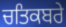
ਚਤਿਕਬਰੇ